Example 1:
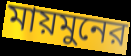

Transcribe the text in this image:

মায়মুনের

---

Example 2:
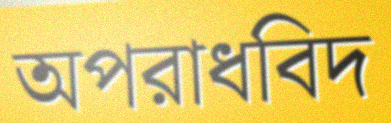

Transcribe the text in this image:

অপরাধবিদ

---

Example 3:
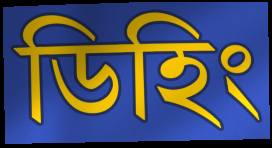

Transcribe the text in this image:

ডিহিং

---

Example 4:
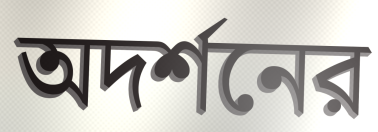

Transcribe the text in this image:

অদর্শনের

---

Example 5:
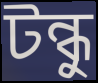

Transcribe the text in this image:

টন্ধু